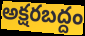
అక్షరబద్దం